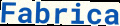
Fabrica